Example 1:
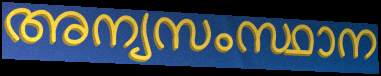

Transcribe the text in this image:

അന്യസംസ്ഥാന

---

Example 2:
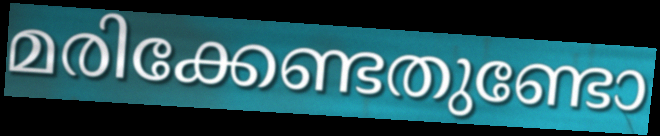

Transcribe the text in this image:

മരിക്കേണ്ടതുണ്ടോ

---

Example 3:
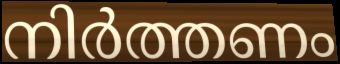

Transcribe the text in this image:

നിർത്തണം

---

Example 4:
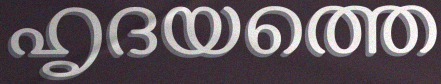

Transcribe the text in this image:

ഹൃദയത്തെ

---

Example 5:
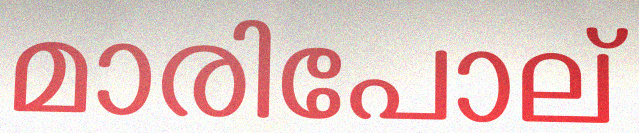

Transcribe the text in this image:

മാരിപോല്